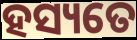
ହସ୍ୟତେ